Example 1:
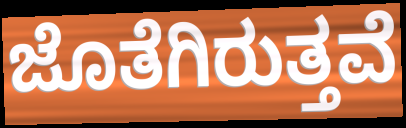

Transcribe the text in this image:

ಜೊತೆಗಿರುತ್ತವೆ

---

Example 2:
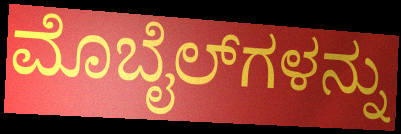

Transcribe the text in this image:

ಮೊಬೈಲ್‌ಗಳನ್ನು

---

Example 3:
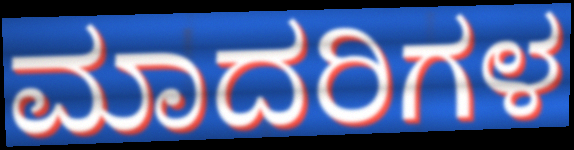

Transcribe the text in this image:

ಮಾದರಿಗಳ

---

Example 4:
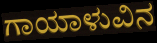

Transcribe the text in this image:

ಗಾಯಾಳುವಿನ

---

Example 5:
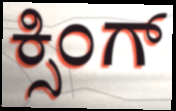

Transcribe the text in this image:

ಕ್ಸಿಂಗ್